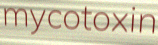
mycotoxin